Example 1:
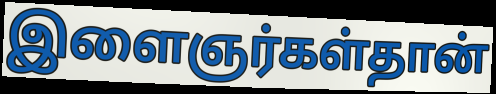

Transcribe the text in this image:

இளைஞர்கள்தான்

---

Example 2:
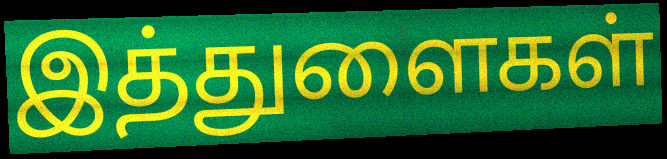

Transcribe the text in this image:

இத்துளைகள்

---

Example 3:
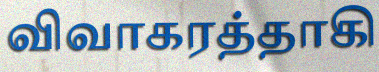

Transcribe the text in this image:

விவாகரத்தாகி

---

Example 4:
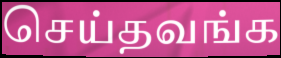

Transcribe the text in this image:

செய்தவங்க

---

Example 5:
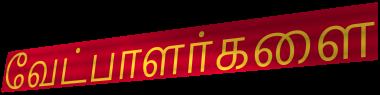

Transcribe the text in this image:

வேட்பாளர்களை